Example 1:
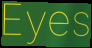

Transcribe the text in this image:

Eyes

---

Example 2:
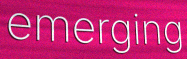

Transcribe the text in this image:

emerging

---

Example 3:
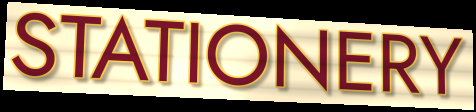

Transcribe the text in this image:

STATIONERY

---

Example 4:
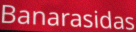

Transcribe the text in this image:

Banarasidas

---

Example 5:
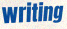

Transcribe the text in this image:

writing